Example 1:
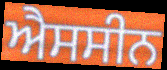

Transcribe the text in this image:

ਐਸਸੀਨ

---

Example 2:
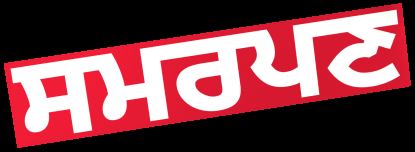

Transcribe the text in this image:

ਸਮਰਪਣ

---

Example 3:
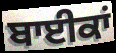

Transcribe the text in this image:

ਬਾਈਕਾਂ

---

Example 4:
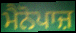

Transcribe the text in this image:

ਮੈਨੋਪਾਜ਼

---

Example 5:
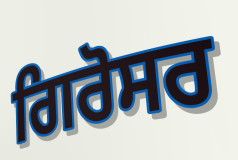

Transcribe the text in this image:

ਗਿਰੋਸਰ